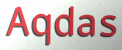
Aqdas